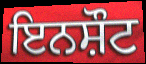
ਇਨਸ਼ੌਟ